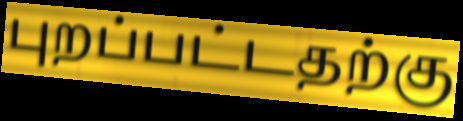
புறப்பட்டதற்கு